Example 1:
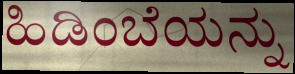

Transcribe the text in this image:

ಹಿಡಿಂಬೆಯನ್ನು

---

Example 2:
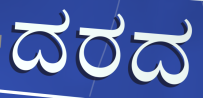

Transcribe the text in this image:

ದರದ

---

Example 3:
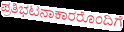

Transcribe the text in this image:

ಪ್ರತಿಭಟನಾಕಾರರೊಂದಿಗೆ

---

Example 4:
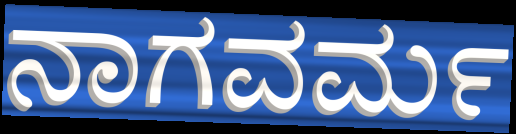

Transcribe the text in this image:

ನಾಗವರ್ಮ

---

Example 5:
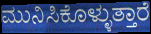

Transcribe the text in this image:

ಮುನಿಸಿಕೊಳ್ಳುತ್ತಾರೆ